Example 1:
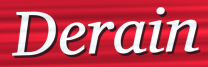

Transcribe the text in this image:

Derain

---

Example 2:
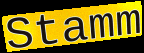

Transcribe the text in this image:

Stamm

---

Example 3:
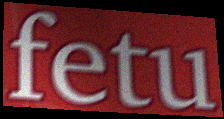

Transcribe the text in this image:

fetu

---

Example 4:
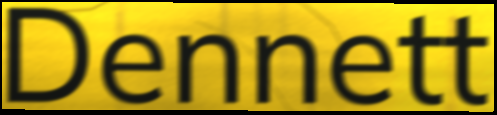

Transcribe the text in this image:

Dennett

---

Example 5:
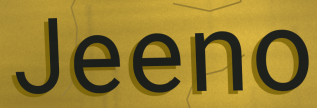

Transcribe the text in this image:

Jeeno